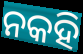
ନକହି